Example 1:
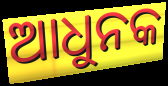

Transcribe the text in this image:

ଆଧୁନକ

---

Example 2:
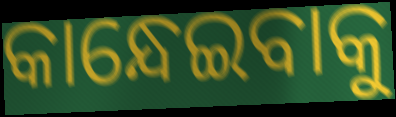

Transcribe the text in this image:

କାନ୍ଧେଇବାକୁ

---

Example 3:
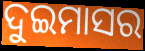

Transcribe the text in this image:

ଦୁଇମାସର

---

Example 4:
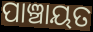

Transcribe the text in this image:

ପାଞ୍ଚାୟତ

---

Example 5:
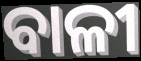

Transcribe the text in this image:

ବାଳୀ